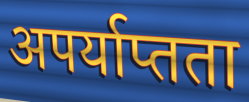
अपर्याप्‍तता